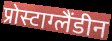
प्रोस्टाग्लैंडीन